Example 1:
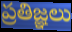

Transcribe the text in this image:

ప్రతిజ్ఞలు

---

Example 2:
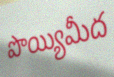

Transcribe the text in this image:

పొయ్యిమీద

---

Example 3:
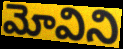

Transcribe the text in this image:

మోవిని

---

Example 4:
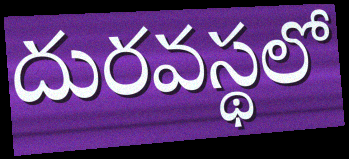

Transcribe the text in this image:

దురవస్థలో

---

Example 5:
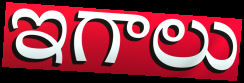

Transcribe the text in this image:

ఇగాలు